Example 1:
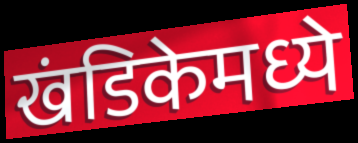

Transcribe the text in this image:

खंडिकेमध्ये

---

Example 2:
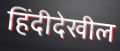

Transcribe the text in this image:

हिंदीदेखील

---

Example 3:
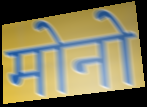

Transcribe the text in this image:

मोनो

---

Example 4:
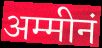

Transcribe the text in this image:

अम्मीनं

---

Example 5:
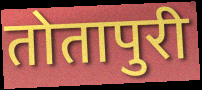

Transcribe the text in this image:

तोतापुरी